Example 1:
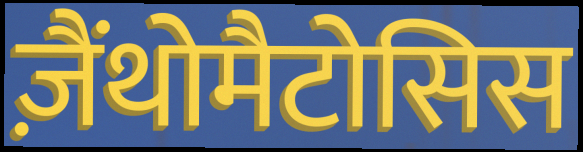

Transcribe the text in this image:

ज़ैंथोमैटोसिस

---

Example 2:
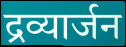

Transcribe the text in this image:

द्रव्यार्जन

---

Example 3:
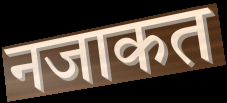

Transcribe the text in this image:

नजाकत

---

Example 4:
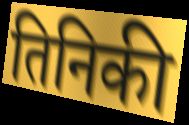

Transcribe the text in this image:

तिनिकी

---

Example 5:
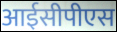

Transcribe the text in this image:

आईसीपीएस